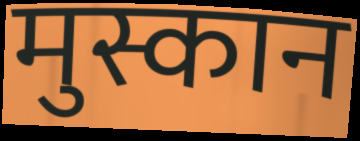
मुस्‍कान